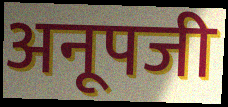
अनूपजी